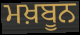
ਮਖ਼ਬੂਨ